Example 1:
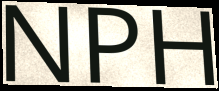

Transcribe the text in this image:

NPH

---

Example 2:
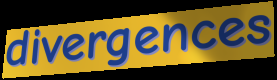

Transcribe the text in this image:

divergences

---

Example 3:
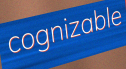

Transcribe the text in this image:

cognizable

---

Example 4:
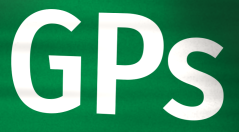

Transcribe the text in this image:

GPs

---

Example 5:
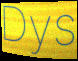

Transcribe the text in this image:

Dys